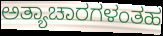
ಅತ್ಯಾಚಾರಗಳಂತಹ